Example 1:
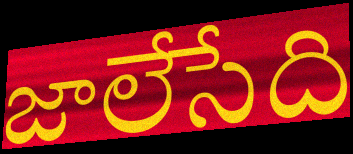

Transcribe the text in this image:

జాలేసేది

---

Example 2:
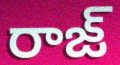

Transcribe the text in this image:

రాజ్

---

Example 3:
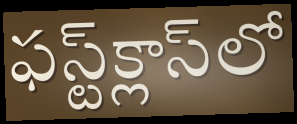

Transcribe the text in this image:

ఫస్ట్‌క్లాస్‌లో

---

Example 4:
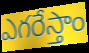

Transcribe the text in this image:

ఎగరేస్తాం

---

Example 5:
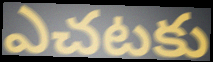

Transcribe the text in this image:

ఎచటకు